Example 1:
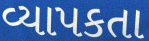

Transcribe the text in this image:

વ્યાપકતા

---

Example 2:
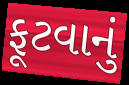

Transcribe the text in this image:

ફૂટવાનું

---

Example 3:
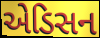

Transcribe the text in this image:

એડિસન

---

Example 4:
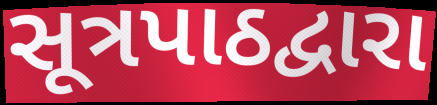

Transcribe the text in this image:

સૂત્રપાઠદ્વારા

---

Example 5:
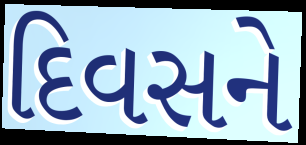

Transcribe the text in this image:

દિવસને